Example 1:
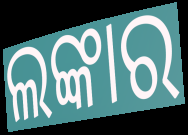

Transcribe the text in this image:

ଲଙ୍କାର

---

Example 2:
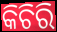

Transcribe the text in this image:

କିଚିରି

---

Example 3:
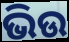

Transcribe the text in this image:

ଭିଉ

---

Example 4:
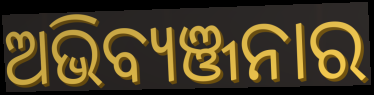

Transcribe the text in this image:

ଅଭିବ୍ୟଞ୍ଜନାର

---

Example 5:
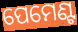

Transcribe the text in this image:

ପେମେଣ୍ଟ